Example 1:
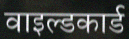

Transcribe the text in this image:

वाइल्डकार्ड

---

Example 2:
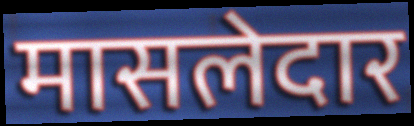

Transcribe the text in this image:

मासलेदार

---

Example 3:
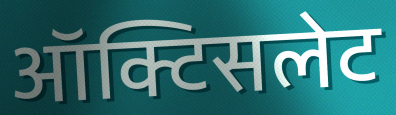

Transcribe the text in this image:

ऑक्टिसलेट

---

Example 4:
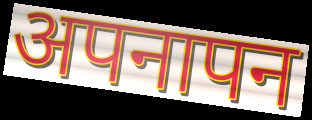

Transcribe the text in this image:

अपनापन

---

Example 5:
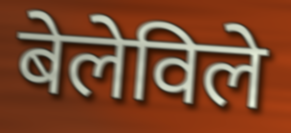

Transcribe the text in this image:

बेलेविले